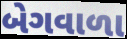
બેગવાળા